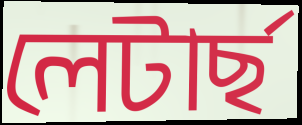
লেটাৰ্ছ